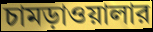
চামড়াওয়ালার